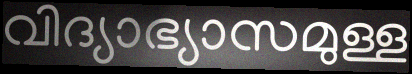
വിദ്യാഭ്യാസമുള്ള